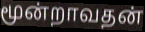
மூன்றாவதன்